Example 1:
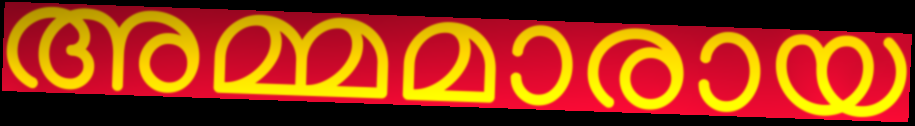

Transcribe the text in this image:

അമ്മമാരായ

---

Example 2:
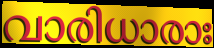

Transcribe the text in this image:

വാരിധാരാഃ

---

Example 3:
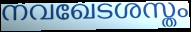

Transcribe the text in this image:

നവഖേടശസ്തം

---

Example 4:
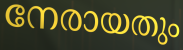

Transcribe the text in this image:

നേരായതും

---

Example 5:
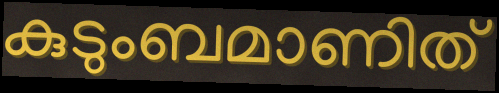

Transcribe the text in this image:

കുടുംബമാണിത്